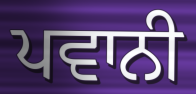
ਪਵਾਨੀ